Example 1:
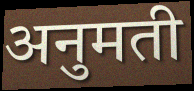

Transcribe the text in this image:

अनुमती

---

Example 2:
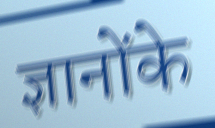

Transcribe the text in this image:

ज्ञानोंके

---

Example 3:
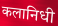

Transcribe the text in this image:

कलानिधी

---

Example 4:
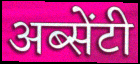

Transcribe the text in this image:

अब्सेंटी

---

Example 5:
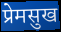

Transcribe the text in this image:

प्रेमसुख